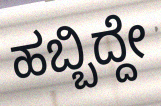
ಹಬ್ಬಿದ್ದೇ